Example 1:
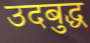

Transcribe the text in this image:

उदबुद्ध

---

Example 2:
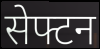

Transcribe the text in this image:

सेफ्टन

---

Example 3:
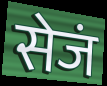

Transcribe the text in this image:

सेजं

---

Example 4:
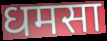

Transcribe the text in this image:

धमसा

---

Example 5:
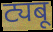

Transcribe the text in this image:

ट्यबू